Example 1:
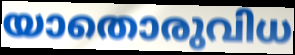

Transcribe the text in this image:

യാതൊരുവിധ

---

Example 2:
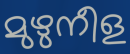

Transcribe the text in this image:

മുഴുനീള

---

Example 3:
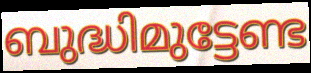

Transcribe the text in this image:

ബുദ്ധിമുട്ടേണ്ട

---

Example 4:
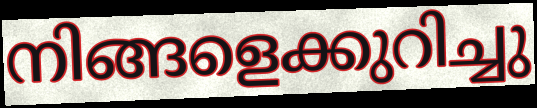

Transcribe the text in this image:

നിങ്ങളെക്കുറിച്ചു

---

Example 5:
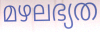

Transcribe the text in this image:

മഴലഭ്യത